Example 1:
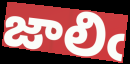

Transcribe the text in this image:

జాలిఁ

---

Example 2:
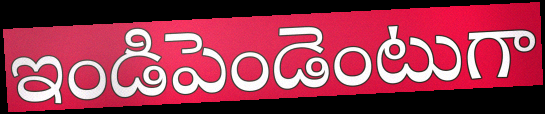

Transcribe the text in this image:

ఇండిపెండెంటుగా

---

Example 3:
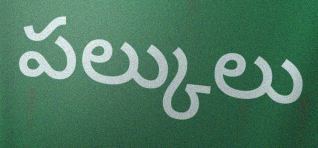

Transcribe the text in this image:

పల్కులు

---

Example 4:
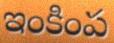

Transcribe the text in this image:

ఇంకింప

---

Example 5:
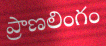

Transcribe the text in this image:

ప్రాణలింగం